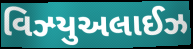
વિઝ્યુઅલાઈઝ